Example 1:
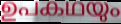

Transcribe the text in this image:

ഉപകഥയും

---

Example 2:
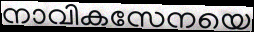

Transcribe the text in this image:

നാവികസേനയെ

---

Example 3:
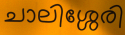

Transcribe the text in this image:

ചാലിശ്ശേരി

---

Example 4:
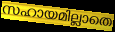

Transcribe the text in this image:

സഹായമില്ലാതെ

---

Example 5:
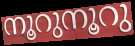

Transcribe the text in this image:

നൂറുനൂറു